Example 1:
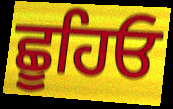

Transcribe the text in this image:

ਛੂਹਿਓ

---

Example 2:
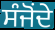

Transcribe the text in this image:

ਸੰਜੋਂਦੇ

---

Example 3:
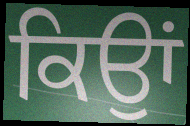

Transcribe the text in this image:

ਕਿਉਾਂ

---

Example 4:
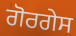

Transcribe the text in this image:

ਗੋਰਗੇਸ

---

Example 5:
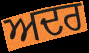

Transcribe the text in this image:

ਅਦਰ